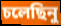
চলেছিনু